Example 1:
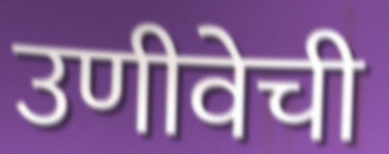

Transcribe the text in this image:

उणीवेची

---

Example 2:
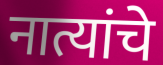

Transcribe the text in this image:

नात्यांचे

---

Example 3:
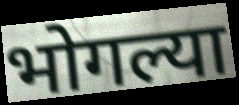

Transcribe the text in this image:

भोगल्या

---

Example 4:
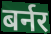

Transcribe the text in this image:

बर्नर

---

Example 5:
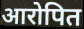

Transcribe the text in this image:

आरोपित